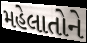
મહેલાતોને